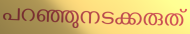
പറഞ്ഞുനടക്കരുത്